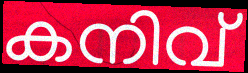
കനിവ്